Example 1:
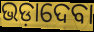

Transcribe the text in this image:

ଭଡ଼ାଦେବା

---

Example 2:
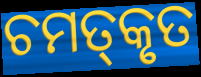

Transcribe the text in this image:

ଚମତ୍‌କୃତ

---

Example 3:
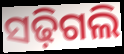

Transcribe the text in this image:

ସଢ଼ିଗଲି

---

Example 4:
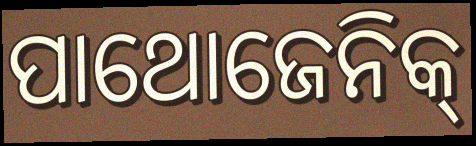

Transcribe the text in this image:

ପାଥୋଜେନିକ୍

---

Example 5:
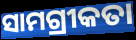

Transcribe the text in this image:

ସାମଗ୍ରୀକତା